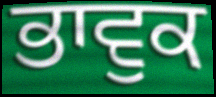
ਭਾਵੁਕ